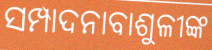
ସମ୍ପାଦନାବାଶୁଳୀଙ୍କ